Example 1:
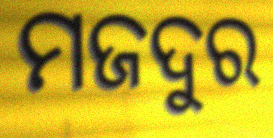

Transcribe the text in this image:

ମଜଦୁର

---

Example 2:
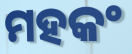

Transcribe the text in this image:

ମହକଂ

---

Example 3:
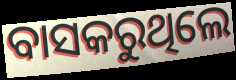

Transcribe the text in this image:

ବାସକରୁଥିଲେ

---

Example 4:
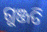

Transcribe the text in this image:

ଗୁଞ୍ଜତି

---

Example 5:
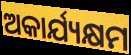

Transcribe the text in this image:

ଅକାର୍ଯ୍ୟକ୍ଷମ